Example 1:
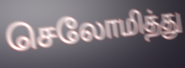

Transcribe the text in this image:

செலோமித்து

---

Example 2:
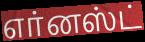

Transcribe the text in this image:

எர்னஸ்ட்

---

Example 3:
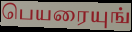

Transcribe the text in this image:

பெயரையுங்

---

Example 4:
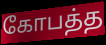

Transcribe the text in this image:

கோபத்த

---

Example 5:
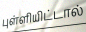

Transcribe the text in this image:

புள்ளியிட்டால்